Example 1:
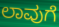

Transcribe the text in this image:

ಲಾವುಗೆ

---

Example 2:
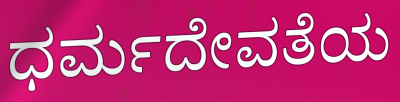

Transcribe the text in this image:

ಧರ್ಮದೇವತೆಯ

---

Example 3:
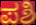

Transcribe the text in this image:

ಪಶಿ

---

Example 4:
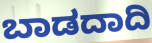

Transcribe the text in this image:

ಬಾಡದಾದಿ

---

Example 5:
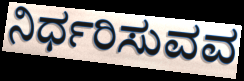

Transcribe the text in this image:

ನಿರ್ಧರಿಸುವವ